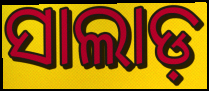
ସାଲାଡ଼